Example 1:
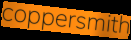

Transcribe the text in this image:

coppersmith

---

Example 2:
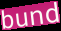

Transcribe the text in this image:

bund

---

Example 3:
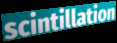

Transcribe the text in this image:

scintillation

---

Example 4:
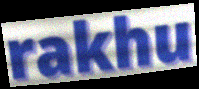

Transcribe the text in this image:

rakhu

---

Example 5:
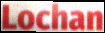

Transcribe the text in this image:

Lochan